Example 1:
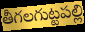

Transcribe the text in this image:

తీగలగుట్టపల్లి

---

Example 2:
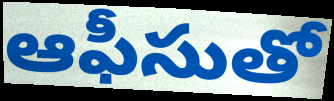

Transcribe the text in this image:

ఆఫీసుతో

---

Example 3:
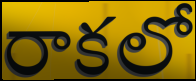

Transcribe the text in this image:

రాకలో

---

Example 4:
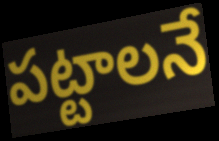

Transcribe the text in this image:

పట్టాలనే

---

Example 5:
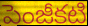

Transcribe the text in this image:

పెంజీకటి